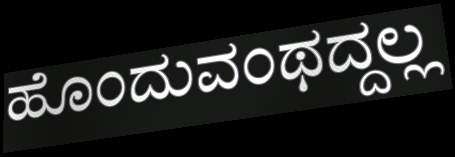
ಹೊಂದುವಂಥದ್ದಲ್ಲ